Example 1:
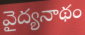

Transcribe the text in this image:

వైద్యనాథం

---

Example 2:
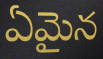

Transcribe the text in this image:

ఏమైన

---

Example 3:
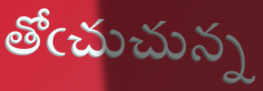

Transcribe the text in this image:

తోఁచుచున్న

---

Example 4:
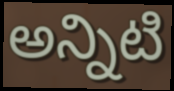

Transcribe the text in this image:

అన్నిటి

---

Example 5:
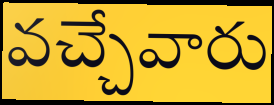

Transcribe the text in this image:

వచ్చేవారు